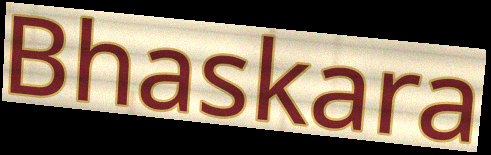
Bhaskara